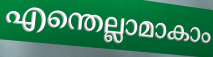
എന്തെല്ലാമാകാം